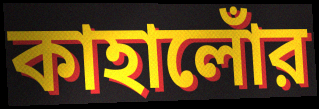
কাহালোঁর